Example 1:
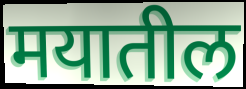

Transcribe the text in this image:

मयातील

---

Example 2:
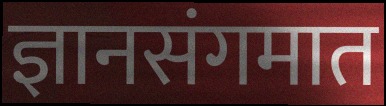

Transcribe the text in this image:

ज्ञानसंगमात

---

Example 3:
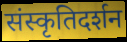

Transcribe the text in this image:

संस्कृतिदर्शन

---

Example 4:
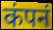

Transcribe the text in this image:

कंपनं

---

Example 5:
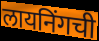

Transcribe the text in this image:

लायनिंगची